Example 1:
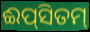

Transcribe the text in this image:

ଈପ୍‌ସିତମ୍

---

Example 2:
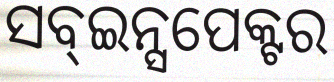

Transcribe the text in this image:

ସବ୍ଇନ୍ସପେକ୍ଟର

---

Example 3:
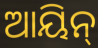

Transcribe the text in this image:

ଆୟିନ୍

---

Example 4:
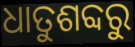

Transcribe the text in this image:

ଧାତୁଶବ୍ଦରୁ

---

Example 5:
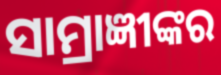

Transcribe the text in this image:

ସାମ୍ରାଜ୍ଞୀଙ୍କର